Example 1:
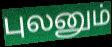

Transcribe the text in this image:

புலனும்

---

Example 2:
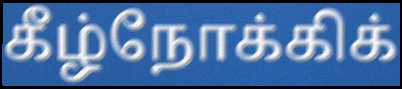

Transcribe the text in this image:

கீழ்நோக்கிக்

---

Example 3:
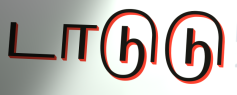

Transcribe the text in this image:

டாடுடு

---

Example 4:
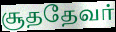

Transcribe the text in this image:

சூததேவர்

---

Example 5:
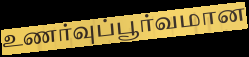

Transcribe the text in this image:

உணர்வுப்பூர்வமான